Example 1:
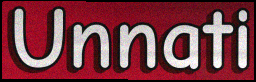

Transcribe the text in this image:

Unnati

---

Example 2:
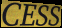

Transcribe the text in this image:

CESS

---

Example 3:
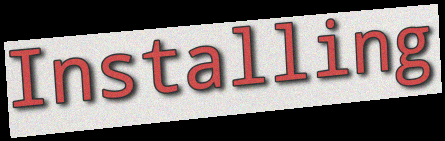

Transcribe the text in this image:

Installing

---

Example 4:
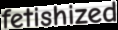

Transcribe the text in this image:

fetishized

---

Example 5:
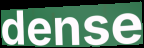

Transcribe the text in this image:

dense